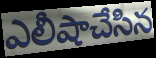
ఎలీషాచేసిన